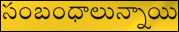
సంబంధాలున్నాయి